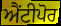
ਐਂਟੀਪੋਰ